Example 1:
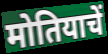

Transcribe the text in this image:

मोतियाचें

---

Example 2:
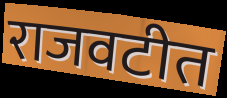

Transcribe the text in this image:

राजवटीत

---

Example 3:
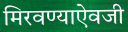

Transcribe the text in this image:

मिरवण्याऐवजी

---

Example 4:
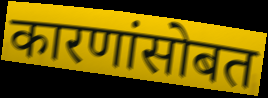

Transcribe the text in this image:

कारणांसोबत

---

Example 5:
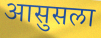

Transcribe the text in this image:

आसुसला